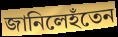
জানিলেহঁতেন